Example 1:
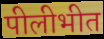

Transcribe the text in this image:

पीलीभीत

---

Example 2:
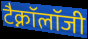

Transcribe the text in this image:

टैक्नॉलॉजी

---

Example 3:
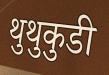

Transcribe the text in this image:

थुथुकुडी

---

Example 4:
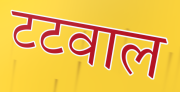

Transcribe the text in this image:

टटवाल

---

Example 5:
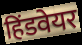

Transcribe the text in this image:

हिंडवेयर